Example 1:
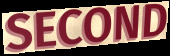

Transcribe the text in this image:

SECOND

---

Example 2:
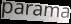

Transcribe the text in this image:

parama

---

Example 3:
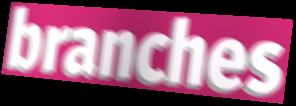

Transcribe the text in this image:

branches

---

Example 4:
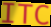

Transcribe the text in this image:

ITC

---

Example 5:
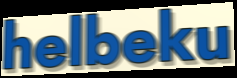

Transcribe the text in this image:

helbeku